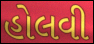
હોલવી